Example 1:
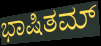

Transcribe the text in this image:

ಭಾಷಿತಮ್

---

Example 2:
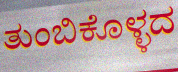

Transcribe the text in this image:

ತುಂಬಿಕೊಳ್ಳದ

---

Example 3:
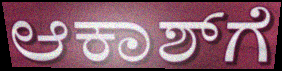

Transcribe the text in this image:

ಆಕಾಶ್‌ಗೆ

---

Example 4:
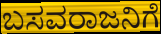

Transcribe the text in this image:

ಬಸವರಾಜನಿಗೆ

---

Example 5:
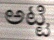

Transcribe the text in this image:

ಅಟ್ಟಿ